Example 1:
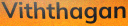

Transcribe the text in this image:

Viththagan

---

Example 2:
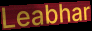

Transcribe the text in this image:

Leabhar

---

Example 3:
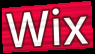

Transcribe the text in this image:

Wix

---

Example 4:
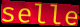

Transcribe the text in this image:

selle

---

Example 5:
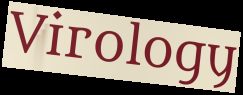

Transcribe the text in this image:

Virology